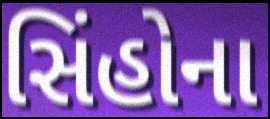
સિંહોના